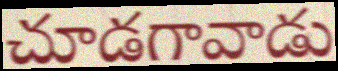
చూడగావాడు